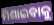
ମିଶାଇବାକୁ